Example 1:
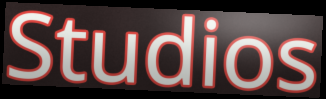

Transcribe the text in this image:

Studios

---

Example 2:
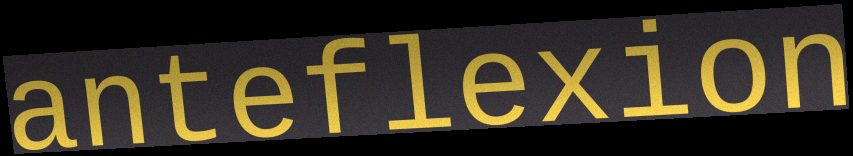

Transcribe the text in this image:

anteflexion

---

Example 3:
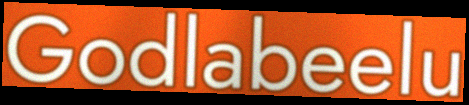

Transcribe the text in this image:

Godlabeelu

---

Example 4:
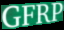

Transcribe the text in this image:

GFRP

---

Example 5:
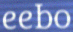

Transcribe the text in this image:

eebo